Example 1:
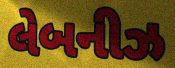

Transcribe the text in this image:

લેબનીઝ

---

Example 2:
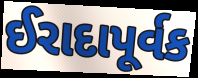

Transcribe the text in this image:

ઈરાદાપૂર્વક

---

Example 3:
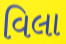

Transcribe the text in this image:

વિલા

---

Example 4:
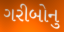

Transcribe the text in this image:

ગરીબોનુ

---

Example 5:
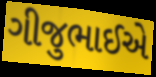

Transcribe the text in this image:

ગીજુભાઈએ